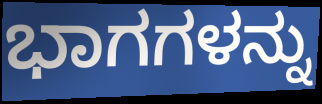
ಭಾಗಗಳನ್ನು